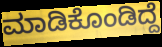
ಮಾಡಿಕೊಂಡಿದ್ದೆ